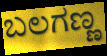
ಬಲಗಣ್ಣ